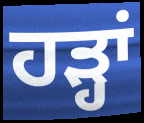
ਹਡ਼੍ਹਾਂ